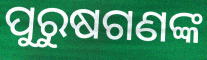
ପୁରୁଷଗଣଙ୍କ